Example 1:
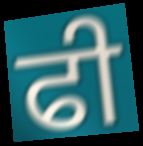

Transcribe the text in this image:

ਫੀ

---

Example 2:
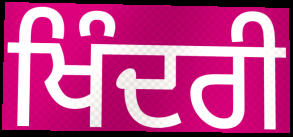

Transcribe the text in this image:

ਖਿੰਦਰੀ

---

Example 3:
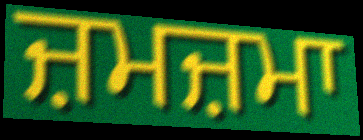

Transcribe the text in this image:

ਜ਼ਮਜ਼ਮਾ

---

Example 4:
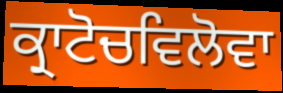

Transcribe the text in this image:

ਕ੍ਰਾਟੋਚਵਿਲੋਵਾ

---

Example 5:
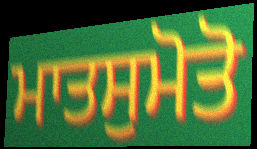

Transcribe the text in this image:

ਮਾਤਸੁਮੋਤੋ